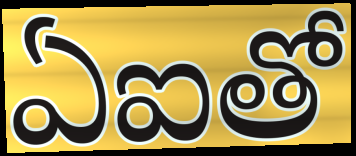
ఏఐతో